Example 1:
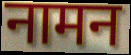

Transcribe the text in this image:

नामन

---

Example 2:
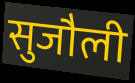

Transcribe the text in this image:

सुजौली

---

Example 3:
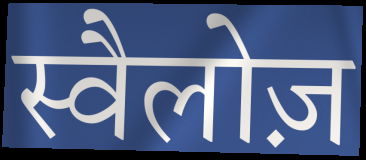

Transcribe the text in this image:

स्वैलोज़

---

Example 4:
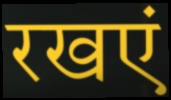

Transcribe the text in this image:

रखएं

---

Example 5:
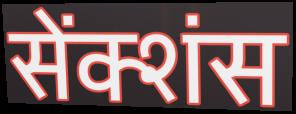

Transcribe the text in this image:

सेंक्शंस